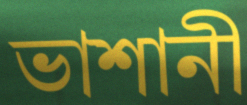
ভাশানী